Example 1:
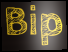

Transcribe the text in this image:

Bip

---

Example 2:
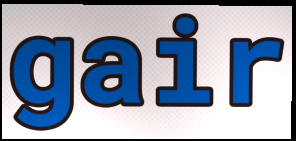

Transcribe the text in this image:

gair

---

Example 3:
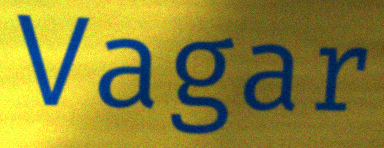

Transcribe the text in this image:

Vagar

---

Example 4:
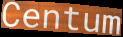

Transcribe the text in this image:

Centum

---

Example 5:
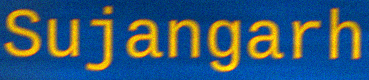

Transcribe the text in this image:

Sujangarh